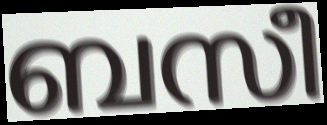
ബസീ